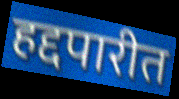
हद्दपारीत